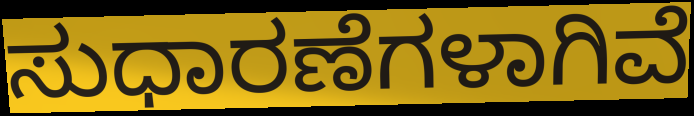
ಸುಧಾರಣೆಗಳಾಗಿವೆ